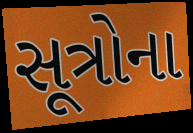
સૂત્રોના